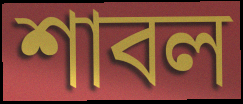
শাবল